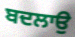
ਬਦਲਾਉ